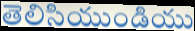
తెలిసియుండియు